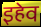
इहेव